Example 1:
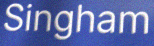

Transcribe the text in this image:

Singham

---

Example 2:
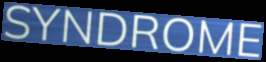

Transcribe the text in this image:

SYNDROME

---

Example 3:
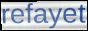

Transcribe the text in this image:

refayet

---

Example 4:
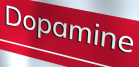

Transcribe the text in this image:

Dopamine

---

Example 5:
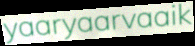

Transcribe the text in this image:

yaaryaarvaaik